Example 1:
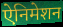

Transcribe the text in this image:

ऐनिमेशन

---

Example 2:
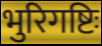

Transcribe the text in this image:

भुरिगष्टिः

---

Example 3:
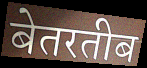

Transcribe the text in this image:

बेतरतीब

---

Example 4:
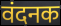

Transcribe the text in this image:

वंदनक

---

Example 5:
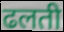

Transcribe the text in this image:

ढलती